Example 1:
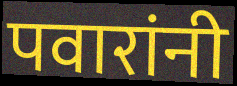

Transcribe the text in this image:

पवारांनी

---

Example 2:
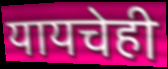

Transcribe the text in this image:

यायचेही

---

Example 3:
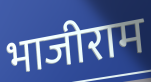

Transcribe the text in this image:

भाजीराम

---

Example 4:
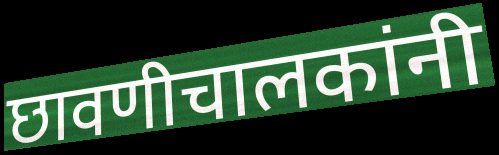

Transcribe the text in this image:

छावणीचालकांनी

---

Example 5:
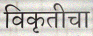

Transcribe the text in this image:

विकृतीचा